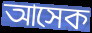
আসেক